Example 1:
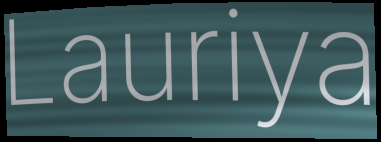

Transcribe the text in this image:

Lauriya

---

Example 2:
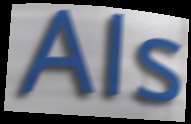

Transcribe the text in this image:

AIs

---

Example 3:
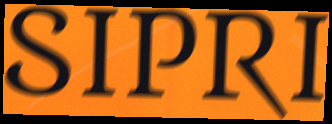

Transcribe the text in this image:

SIPRI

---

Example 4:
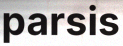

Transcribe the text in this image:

parsis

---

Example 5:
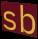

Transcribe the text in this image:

sb